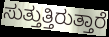
ಸುತ್ತುತ್ತಿರುತ್ತಾರೆ